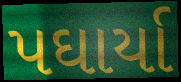
પઘાર્યા